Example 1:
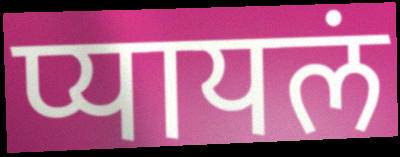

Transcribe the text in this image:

प्यायलं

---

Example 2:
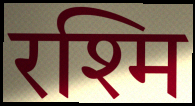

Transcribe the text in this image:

रश्मि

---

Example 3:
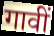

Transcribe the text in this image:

गावीं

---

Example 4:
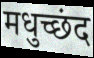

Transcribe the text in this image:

मधुच्छंद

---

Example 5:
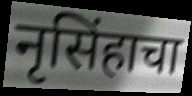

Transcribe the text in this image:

नृसिंहाचा